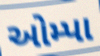
ઓમ્પા